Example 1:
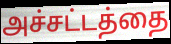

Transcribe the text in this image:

அச்சட்டத்தை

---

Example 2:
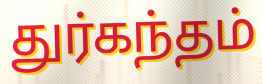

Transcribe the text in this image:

துர்கந்தம்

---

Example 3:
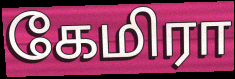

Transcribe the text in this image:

கேமிரா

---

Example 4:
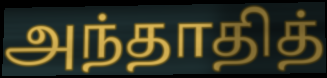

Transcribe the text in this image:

அந்தாதித்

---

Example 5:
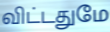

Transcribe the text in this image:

விட்டதுமே